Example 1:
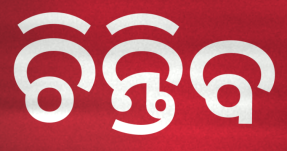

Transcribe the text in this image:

ଚିନ୍ତିବ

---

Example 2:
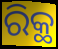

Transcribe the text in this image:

ରିକ୍ଥ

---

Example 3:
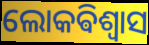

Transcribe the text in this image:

ଲୋକଵିଶ୍ଵାସ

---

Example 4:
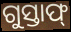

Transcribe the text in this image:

ଗୁସ୍ତାଫ୍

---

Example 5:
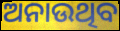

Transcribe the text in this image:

ଅନାଉଥିବ